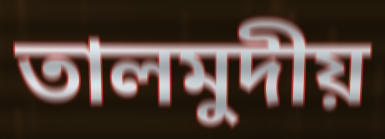
তালমুদীয়